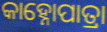
କାହ୍ନୋପାତ୍ରା